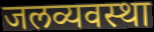
जलव्यवस्था